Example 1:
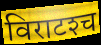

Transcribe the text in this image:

विराटश्च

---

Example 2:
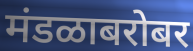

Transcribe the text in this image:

मंडळाबरोबर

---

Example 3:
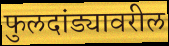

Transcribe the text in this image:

फुलदांड्यावरील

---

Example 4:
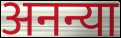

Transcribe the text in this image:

अनन्या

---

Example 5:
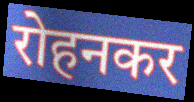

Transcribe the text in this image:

रोहनकर